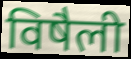
विषैली